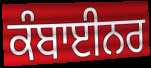
ਕੰਬਾਈਨਰ